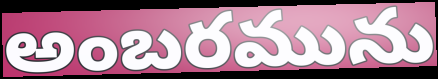
అంబరమును